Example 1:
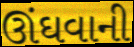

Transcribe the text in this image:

ઊંઘવાની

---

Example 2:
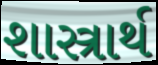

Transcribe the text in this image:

શાસ્ત્રાર્થ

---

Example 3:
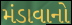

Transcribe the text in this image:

મંડાવાનો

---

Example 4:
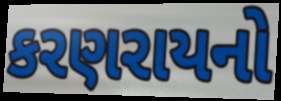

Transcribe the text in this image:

કરણરાયનો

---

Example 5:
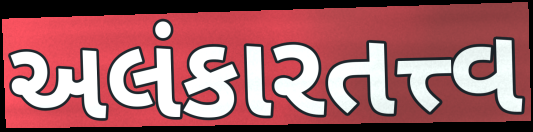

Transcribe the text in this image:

અલંકારતત્ત્વ